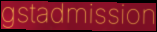
gstadmission